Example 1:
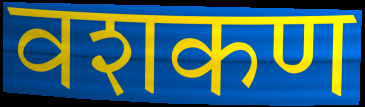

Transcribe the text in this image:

वशकण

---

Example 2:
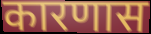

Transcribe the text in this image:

कारणास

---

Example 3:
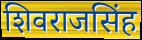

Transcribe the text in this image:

शिवराजसिंह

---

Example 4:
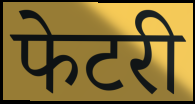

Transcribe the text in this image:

फेटरी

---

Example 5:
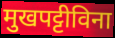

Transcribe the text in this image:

मुखपट्टीविना